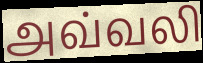
அவ்வலி